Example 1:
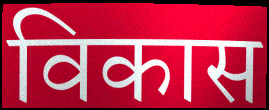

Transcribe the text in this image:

विकास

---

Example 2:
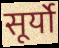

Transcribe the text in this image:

सूर्यो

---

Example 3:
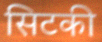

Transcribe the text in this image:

सिटकी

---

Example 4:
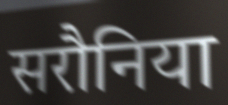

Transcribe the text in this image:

सरौनिया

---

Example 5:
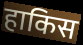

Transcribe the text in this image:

हाकिस